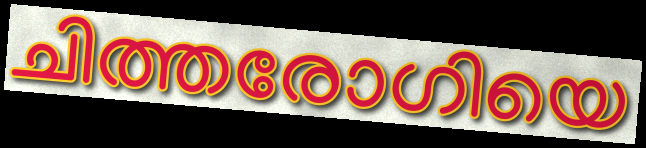
ചിത്തരോഗിയെ